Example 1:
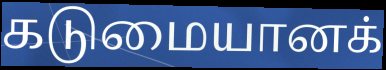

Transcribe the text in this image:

கடுமையானக்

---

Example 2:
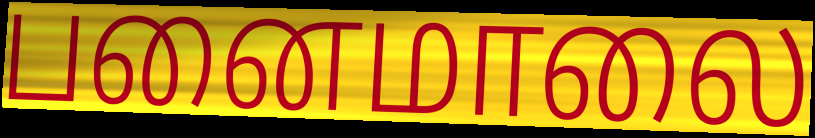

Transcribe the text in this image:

பனைமாலை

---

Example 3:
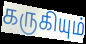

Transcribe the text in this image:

கருகியும்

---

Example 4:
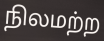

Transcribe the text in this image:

நிலமற்ற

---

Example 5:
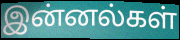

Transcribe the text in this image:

இன்னல்கள்